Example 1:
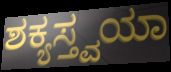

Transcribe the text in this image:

ಶಕ್ಯಸ್ತ್ವಯಾ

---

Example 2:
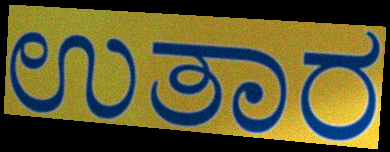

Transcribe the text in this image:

ಉತಾರ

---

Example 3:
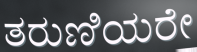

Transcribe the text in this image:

ತರುಣಿಯರೇ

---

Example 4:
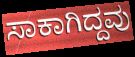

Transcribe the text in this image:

ಸಾಕಾಗಿದ್ದವು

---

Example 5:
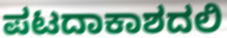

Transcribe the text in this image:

ಪಟದಾಕಾಶದಲಿ